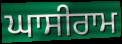
ਘਾਸੀਰਾਮ